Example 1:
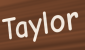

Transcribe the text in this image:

Taylor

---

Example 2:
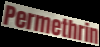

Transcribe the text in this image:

Permethrin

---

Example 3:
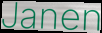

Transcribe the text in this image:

Janen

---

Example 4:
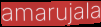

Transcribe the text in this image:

amarujala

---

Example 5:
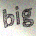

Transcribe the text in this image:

big